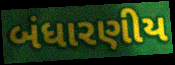
બંધારણીય